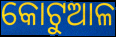
କୋଟୁଆଳ